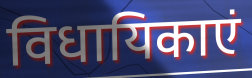
विधायिकाएं